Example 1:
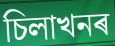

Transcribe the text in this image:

চিলাখনৰ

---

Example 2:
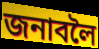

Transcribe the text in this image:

জনাবলৈ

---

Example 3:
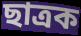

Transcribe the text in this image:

ছাত্ৰক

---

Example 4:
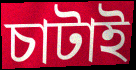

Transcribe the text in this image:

চাটাই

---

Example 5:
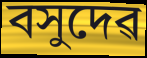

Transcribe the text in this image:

বসুদেৱ